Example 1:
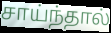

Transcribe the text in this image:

சாய்ந்தால்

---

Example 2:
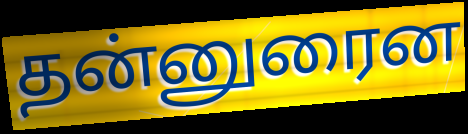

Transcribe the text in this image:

தன்னுரைன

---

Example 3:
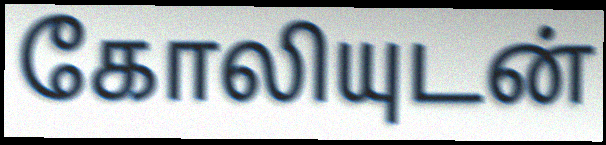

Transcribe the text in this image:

கோலியுடன்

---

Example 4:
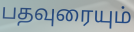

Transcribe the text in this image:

பதவுரையும்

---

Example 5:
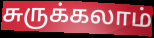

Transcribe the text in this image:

சுருக்கலாம்